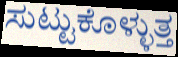
ಸುಟ್ಟುಕೊಳ್ಳುತ್ತ